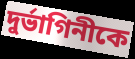
দুর্ভাগিনীকে